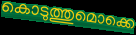
കൊടുത്തുമൊക്കെ